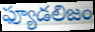
ఫ్యూడలిజం